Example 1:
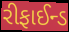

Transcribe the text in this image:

રીફાઈન્ડ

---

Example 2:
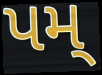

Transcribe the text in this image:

પમ્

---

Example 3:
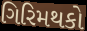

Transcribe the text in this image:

ગિરિમથકો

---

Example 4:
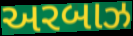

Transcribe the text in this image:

અરબાઝ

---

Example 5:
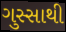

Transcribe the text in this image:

ગુસ્સાથી